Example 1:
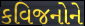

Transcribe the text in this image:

કવિજનોને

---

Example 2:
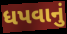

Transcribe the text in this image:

ધપવાનું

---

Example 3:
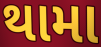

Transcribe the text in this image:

થામા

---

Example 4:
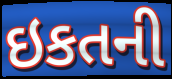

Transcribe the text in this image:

ઇકતની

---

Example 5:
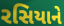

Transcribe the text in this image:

રસિયાને